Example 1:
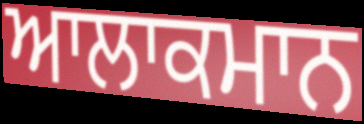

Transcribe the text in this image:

ਆਲਾਕਮਾਨ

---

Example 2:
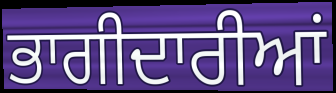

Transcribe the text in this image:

ਭਾਗੀਦਾਰੀਆਂ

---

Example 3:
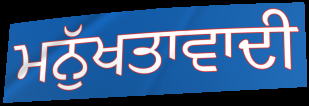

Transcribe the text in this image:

ਮਨੁੱਖਤਾਵਾਦੀ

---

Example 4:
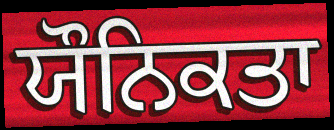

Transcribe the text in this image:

ਯੌਨਿਕਤਾ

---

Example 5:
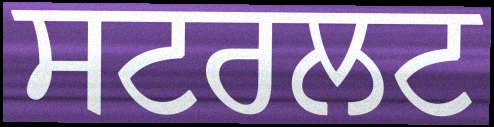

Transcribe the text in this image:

ਸਟਰਲਟ